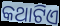
କଥାଟିଏ